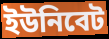
ইউনিবেট